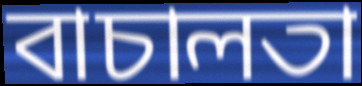
বাচালতা